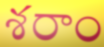
శరాం